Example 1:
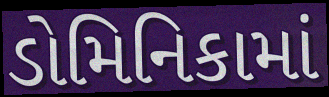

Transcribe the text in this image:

ડોમિનિકામાં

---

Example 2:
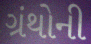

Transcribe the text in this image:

ગ્રંથોની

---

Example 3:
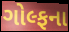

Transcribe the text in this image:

ગોલ્ફના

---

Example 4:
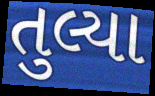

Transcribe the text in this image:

તુલ્યા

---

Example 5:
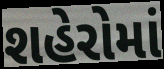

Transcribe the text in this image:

શહેરોમાં